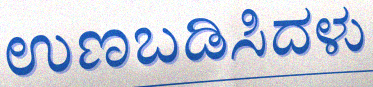
ಉಣಬಡಿಸಿದಳು